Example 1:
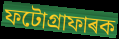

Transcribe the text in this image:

ফটোগ্ৰাফাৰক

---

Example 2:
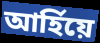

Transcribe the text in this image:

আৰ্হিয়ে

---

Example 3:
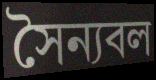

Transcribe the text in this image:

সৈন্যবল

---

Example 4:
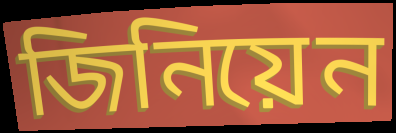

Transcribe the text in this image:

জিনিয়েন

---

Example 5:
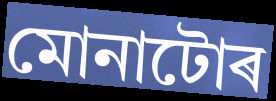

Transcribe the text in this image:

মোনাটোৰ